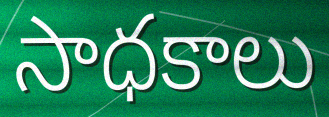
సాధకాలు